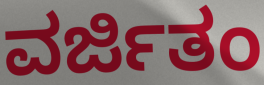
ವರ್ಜಿತಂ